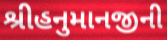
શ્રીહનુમાનજીની